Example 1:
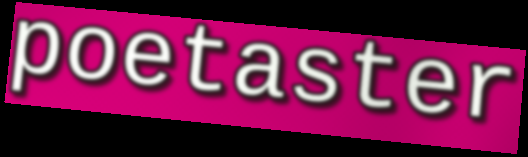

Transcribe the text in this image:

poetaster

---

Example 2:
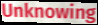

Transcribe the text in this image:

Unknowing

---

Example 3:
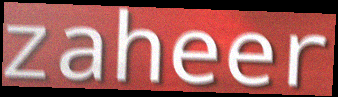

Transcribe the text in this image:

zaheer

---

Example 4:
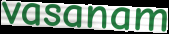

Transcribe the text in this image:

vasanam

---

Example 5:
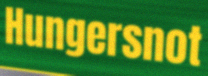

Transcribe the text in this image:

Hungersnot